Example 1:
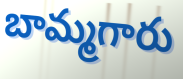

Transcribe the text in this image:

బామ్మగారు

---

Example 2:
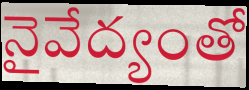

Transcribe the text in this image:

నైవేద్యంతో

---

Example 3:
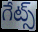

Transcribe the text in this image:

గేట్స్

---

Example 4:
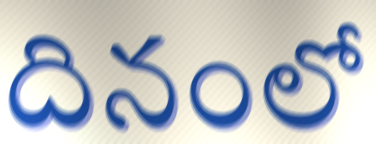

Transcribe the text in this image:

దినంలో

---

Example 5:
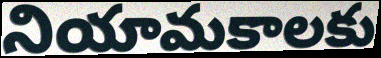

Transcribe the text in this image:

నియామకాలకు